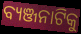
ବ୍ୟଞ୍ଜନାଟିକୁ